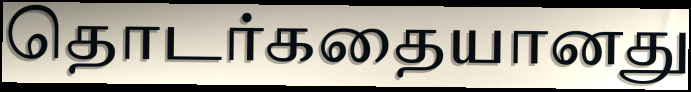
தொடர்கதையானது